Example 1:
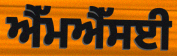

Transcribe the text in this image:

ਐੱਮਐੱਸਈ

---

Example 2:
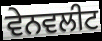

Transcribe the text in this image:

ਵੇਨਵਲੀਟ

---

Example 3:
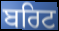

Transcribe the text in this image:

ਬਰਿਟ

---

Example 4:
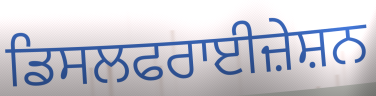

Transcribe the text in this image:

ਡਿਸਲਫਰਾਈਜ਼ੇਸ਼ਨ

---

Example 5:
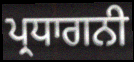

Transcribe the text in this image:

ਪ੍ਰਧਾਗਨੀ